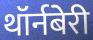
थॉर्नबेरी